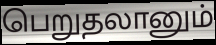
பெறுதலானும்